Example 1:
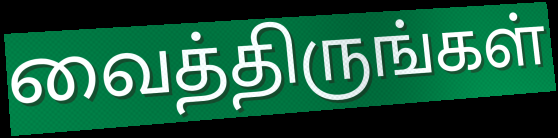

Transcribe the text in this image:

வைத்திருங்கள்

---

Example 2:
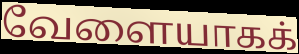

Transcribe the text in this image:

வேளையாகக்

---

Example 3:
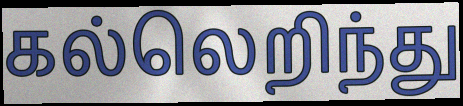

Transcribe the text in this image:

கல்லெறிந்து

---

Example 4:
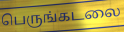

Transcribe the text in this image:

பெருங்கடலை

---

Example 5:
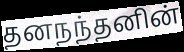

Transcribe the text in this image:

தனநந்தனின்